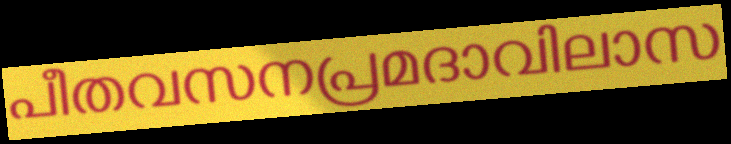
പീതവസനപ്രമദാവിലാസ